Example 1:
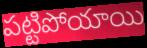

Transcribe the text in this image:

పట్టిపోయాయి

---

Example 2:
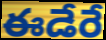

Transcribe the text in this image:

ఈడేరే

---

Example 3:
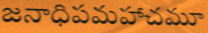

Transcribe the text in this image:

జనాధిపమహాచమూ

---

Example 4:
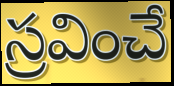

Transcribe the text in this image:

స్రవించే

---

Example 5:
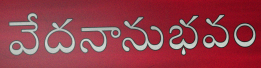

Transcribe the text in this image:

వేదనానుభవం